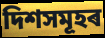
দিশসমূহৰ